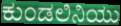
ಕುಂಡಲಿನಿಯು